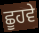
ਛੂਹਵੇ